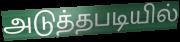
அடுத்தபடியில்